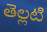
తెల్లటి